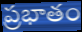
ప్రభాతం